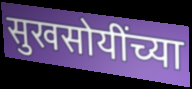
सुखसोयींच्या